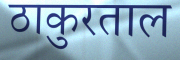
ठाकुरताल